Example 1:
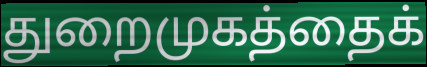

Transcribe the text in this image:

துறைமுகத்தைக்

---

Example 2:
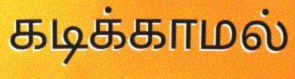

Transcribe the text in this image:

கடிக்காமல்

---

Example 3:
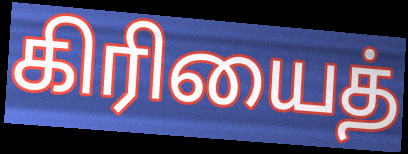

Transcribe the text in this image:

கிரியைத்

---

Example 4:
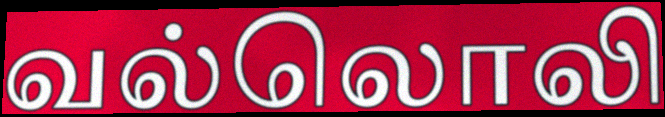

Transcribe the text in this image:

வல்லொலி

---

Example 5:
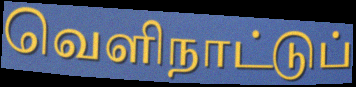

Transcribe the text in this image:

வெளிநாட்டுப்